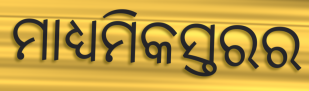
ମାଧ୍ୟମିକସ୍ତରର